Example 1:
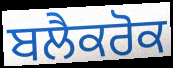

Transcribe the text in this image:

ਬਲੈਕਰੋਕ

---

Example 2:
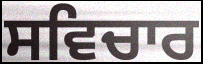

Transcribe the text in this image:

ਸਵਿਚਾਰ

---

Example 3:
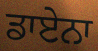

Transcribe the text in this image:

ਡਾਏਨਾ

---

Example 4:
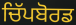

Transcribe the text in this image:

ਚਿੱਪਬੋਰਡ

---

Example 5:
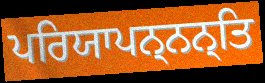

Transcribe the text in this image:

ਪਰਿਯਾਪਨ੍ਨਨ੍ਤਿ